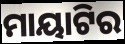
ମାୟାଟିର